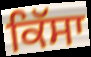
ਕਿੱਸਾ